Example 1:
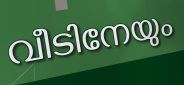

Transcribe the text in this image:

വീടിനേയും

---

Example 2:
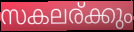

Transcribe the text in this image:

സകലര്ക്കും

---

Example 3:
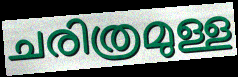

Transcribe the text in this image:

ചരിത്രമുള്ള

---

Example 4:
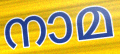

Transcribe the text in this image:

നാമ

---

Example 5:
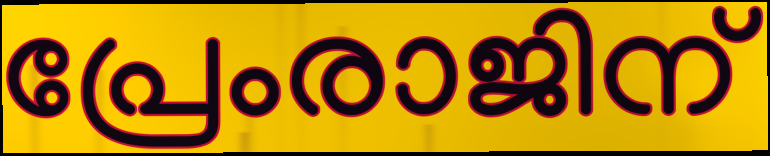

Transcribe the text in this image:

പ്രേംരാജിന്